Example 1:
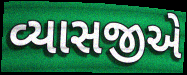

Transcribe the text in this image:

વ્યાસજીએ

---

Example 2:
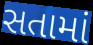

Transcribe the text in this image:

સતામાં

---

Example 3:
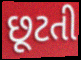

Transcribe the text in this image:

છૂટતી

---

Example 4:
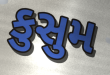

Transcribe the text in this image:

કુસુમ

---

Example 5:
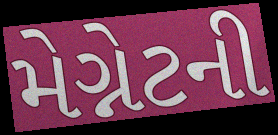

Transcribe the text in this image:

મેગ્નેટની